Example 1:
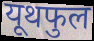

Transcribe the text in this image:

यूथफुल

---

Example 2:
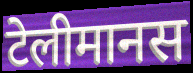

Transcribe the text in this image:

टेलीमानस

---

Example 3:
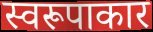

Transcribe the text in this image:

स्वरूपाकार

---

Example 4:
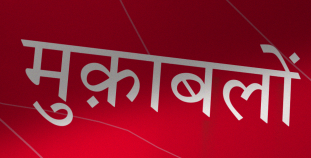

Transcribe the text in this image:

मुक़ाबलों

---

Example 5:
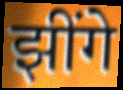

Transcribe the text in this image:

झींगे